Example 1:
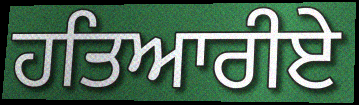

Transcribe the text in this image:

ਹਤਿਆਰੀਏ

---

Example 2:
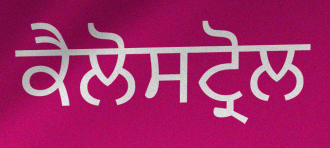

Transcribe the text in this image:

ਕੈਲੋਸਟ੍ਰੋਲ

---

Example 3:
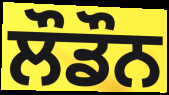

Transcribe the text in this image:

ਲੌਡੌਨ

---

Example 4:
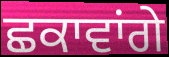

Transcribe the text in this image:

ਛਕਾਵਾਂਗੇ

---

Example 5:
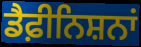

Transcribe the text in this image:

ਡੈਫ਼ੀਨਿਸ਼ਨਾਂ